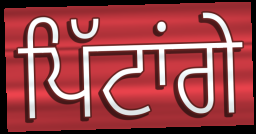
ਪਿੱਟਾਂਗੇ